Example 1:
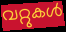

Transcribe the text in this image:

വറ്റുകൾ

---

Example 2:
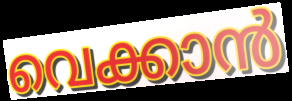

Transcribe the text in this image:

വെക്കാൻ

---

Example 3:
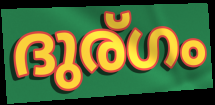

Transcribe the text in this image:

ദുര്ഗം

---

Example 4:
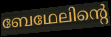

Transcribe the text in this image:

ബേഥേലിന്റെ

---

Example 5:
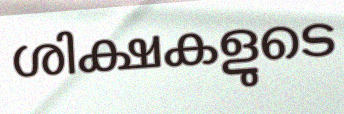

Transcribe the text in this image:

ശിക്ഷകളുടെ